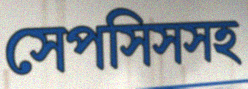
সেপসিসসহ